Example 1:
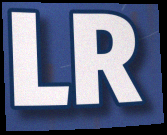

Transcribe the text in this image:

LR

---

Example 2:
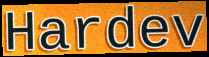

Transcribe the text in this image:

Hardev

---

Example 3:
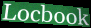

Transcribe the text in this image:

Locbook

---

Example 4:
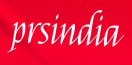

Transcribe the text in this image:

prsindia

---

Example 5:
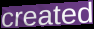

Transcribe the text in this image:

created